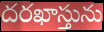
దరఖాస్తును